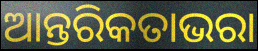
ଆନ୍ତରିକତାଭରା